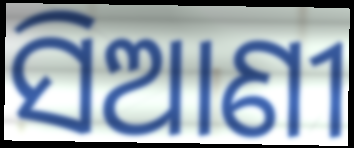
ସିଆଣୀ